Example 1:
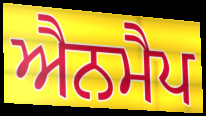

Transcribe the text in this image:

ਐਨਮੈਪ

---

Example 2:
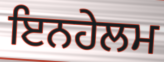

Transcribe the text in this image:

ਇਨਹੇਲਮ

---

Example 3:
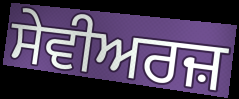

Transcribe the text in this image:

ਸੇਵੀਅਰਜ਼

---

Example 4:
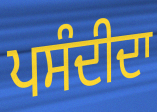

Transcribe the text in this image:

ਪਸੰਦੀਦਾ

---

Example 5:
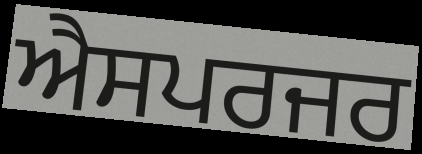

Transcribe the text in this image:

ਐਸਪਰਜਰ